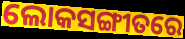
ଲୋକସଙ୍ଗୀତରେ